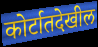
कोर्टातदेखील